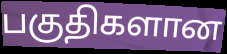
பகுதிகளான